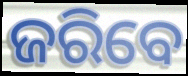
ଜରିବେ